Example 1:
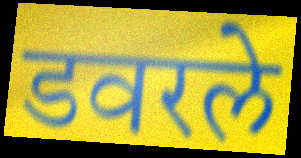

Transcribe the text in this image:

डवरले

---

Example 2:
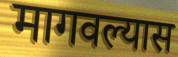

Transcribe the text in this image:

मागवल्यास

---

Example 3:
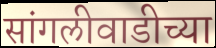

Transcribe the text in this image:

सांगलीवाडीच्या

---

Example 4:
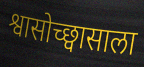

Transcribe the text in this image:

श्वासोच्छ्वासाला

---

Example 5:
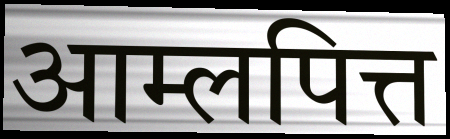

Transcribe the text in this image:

आम्लपित्त